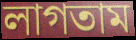
লাগতাম